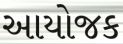
આયોજક